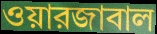
ওয়ারজাবাল